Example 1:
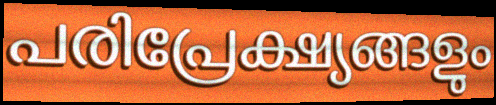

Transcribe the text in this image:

പരിപ്രേക്ഷ്യങ്ങളും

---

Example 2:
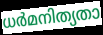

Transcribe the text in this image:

ധർമനിത്യതാ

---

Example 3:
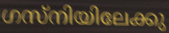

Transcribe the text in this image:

ഗസ്നിയിലേക്കു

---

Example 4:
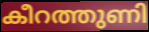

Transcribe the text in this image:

കീറത്തുണി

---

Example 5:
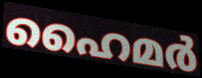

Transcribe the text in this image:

ഹൈമർ